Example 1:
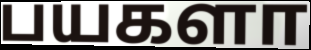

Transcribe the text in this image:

பயகளா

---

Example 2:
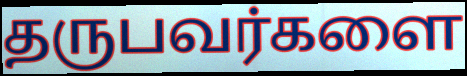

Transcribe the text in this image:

தருபவர்களை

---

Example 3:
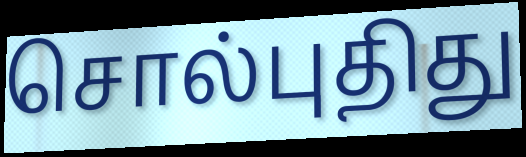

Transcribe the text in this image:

சொல்புதிது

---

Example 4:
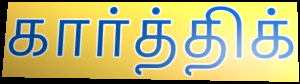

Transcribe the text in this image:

கார்த்திக்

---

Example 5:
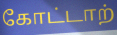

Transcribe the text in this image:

கோட்டாற்